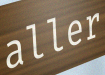
aller